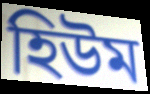
হিউম